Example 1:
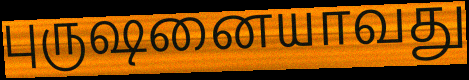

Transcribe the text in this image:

புருஷனையாவது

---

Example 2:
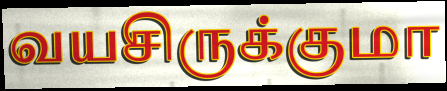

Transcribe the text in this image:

வயசிருக்குமா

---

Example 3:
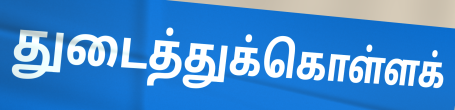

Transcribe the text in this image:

துடைத்துக்கொள்ளக்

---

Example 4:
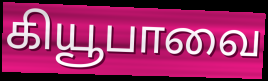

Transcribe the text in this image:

கியூபாவை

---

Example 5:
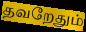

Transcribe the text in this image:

தவறேதும்